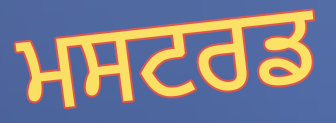
ਮਸਟਰਡ